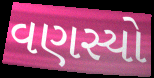
વણસ્યો